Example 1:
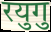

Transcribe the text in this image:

रयुगु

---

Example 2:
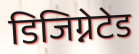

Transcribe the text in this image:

डिजिग्नेटेड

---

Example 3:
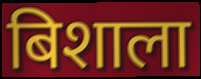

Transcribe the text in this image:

बिशाला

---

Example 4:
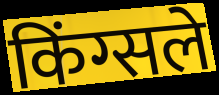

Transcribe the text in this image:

किंग्सले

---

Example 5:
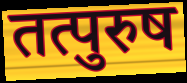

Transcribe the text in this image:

तत्पुरुष